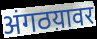
अंगठय़ावर